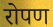
रोपण